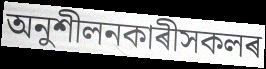
অনুশীলনকাৰীসকলৰ